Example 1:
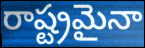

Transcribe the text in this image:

రాష్ట్రమైనా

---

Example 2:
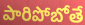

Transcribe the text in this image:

పారిపోబోతే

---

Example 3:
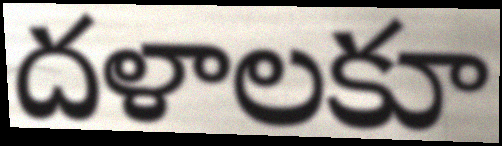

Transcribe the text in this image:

దళాలకూ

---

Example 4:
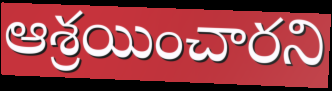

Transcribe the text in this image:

ఆశ్రయించారని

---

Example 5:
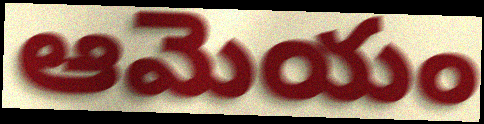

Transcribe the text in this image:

ఆమెయం